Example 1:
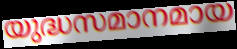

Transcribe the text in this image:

യുദ്ധസമാനമായ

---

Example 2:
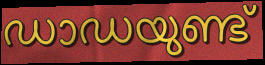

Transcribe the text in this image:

ഡാഡയുണ്ട്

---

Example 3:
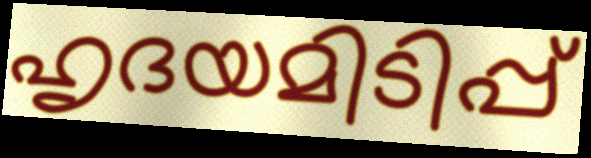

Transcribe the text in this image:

ഹൃദയമിടിപ്പ്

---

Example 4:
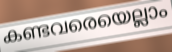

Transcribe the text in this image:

കണ്ടവരെയെല്ലാം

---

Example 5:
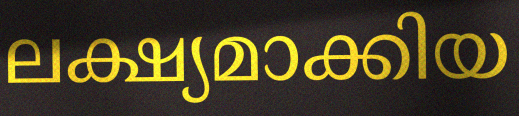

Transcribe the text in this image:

ലക്ഷ്യമാക്കിയ